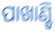
ପାଖାଣ୍ଡି